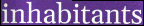
inhabitants